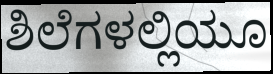
ಶಿಲೆಗಳಲ್ಲಿಯೂ